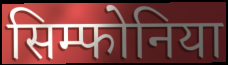
सिम्फोनिया